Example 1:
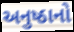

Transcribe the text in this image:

અનુષ્ઠાનો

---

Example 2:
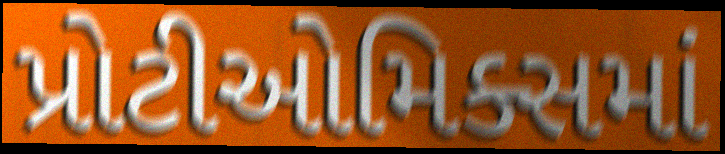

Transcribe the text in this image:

પ્રોટીઓમિક્સમાં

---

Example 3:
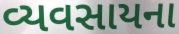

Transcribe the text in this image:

વ્યવસાયના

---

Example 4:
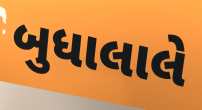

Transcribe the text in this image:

બુધાલાલે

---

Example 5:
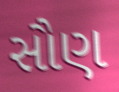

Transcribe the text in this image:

સૌણ